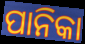
ପାନିକା